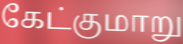
கேட்குமாறு